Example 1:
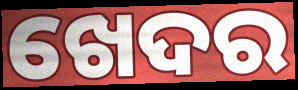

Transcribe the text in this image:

ଖେଦର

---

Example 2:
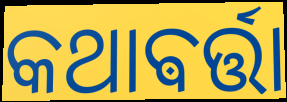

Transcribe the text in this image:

କଥାଵର୍ତ୍ତା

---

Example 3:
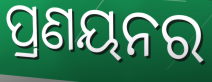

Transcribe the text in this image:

ପ୍ରଣୟନର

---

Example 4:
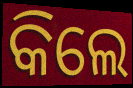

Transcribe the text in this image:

କିଲେ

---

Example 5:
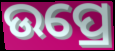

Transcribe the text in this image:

ଉପ୍ରେ